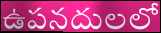
ఉపనదులలో